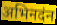
अभिनदंन